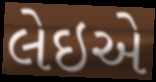
લેઇએ